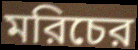
মরিচের